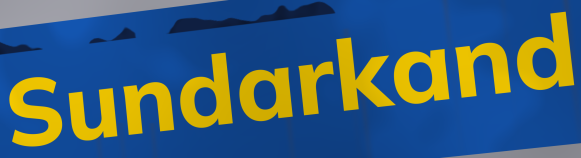
Sundarkand